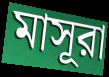
মাসূরা